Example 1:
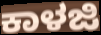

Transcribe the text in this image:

ಕಾಳಜಿ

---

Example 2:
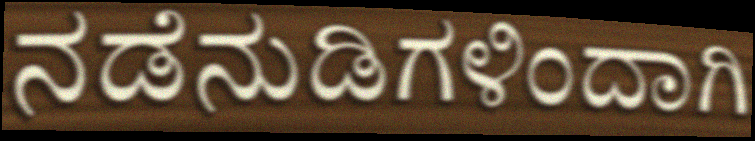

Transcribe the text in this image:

ನಡೆನುಡಿಗಳಿಂದಾಗಿ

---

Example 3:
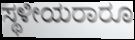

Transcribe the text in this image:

ಸ್ಥಳೀಯರಾರೂ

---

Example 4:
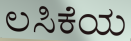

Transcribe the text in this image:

ಲಸಿಕೆಯ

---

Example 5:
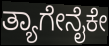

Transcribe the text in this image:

ತ್ಯಾಗೇನೈಕೇ